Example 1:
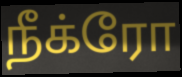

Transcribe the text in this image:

நீக்ரோ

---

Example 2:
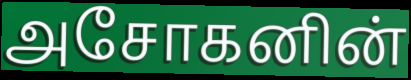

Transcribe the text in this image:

அசோகனின்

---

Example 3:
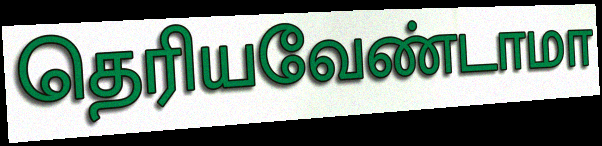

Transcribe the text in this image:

தெரியவேண்டாமா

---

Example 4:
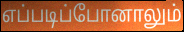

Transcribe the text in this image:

எப்படிப்போனாலும்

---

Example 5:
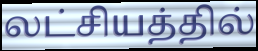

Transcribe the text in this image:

லட்சியத்தில்